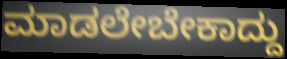
ಮಾಡಲೇಬೇಕಾದ್ದು